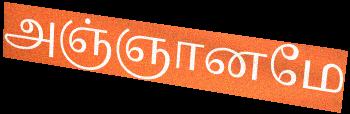
அஞ்ஞானமே